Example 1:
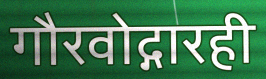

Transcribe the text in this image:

गौरवोद्गारही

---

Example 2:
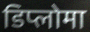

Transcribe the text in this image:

डिप्लोमा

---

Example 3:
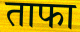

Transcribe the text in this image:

ताफा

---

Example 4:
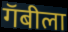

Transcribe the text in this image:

गॅबीला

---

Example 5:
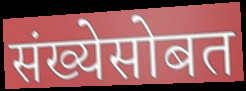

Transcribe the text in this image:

संख्येसोबत